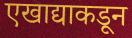
एखाद्याकडून